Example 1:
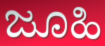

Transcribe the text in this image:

ಜೂಹಿ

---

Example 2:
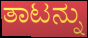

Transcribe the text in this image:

ತಾಟನ್ನು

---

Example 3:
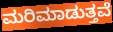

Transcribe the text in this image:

ಮರಿಮಾಡುತ್ತವೆ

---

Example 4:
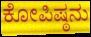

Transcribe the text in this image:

ಕೋಪಿಷ್ಠನು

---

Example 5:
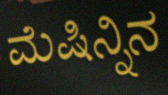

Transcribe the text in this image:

ಮೆಷಿನ್ನಿನ